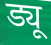
ड्यू